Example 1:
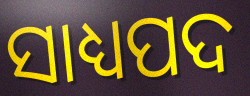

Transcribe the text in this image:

ସାଧ୍ଯପଦ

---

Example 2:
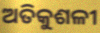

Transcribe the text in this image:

ଅତିକୁଶଳୀ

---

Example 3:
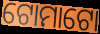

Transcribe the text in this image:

ଟୋମାଟୋ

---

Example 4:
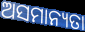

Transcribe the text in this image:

ଅସମାନ୍ୟତା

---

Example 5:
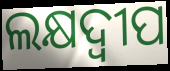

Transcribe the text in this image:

ଲକ୍ଷଦ୍ୱୀପ